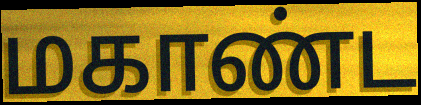
மகாண்ட